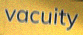
vacuity